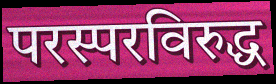
परस्परविरुद्ध